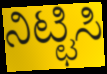
ನಿಟ್ಟಿಸಿ